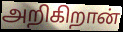
அறிகிறான்